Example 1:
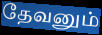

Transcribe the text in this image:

தேவனும்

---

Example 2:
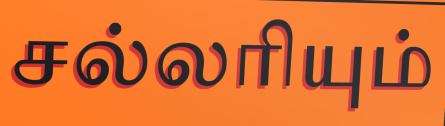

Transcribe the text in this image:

சல்லரியும்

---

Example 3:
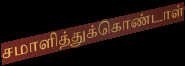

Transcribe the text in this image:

சமாளித்துக்கொண்டாள்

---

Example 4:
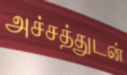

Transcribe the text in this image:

அச்சத்துடன்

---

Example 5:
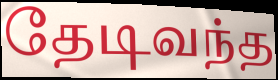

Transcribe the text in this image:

தேடிவந்த